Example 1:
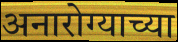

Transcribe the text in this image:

अनारोग्याच्या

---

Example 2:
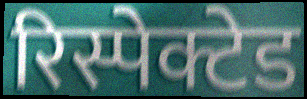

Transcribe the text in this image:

रिस्पेक्टेड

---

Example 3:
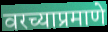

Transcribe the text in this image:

वरच्याप्रमाणे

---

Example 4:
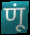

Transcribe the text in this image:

णूं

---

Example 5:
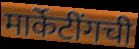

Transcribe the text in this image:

मार्केटींगची